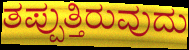
ತಪ್ಪುತ್ತಿರುವುದು